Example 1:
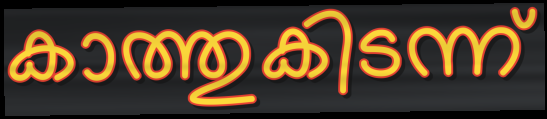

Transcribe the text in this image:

കാത്തുകിടന്ന്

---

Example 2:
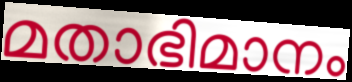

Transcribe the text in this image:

മതാഭിമാനം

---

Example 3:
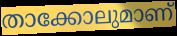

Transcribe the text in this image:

താക്കോലുമാണ്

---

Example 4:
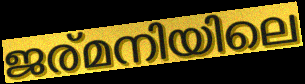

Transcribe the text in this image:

ജര്മനിയിലെ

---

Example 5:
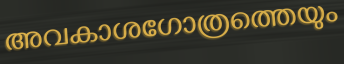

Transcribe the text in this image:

അവകാശഗോത്രത്തെയും